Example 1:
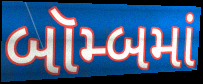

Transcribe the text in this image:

બૉમ્બમાં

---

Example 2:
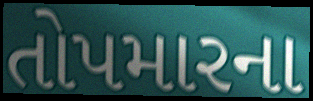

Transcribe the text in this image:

તોપમારના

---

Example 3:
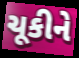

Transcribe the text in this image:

ચૂકીને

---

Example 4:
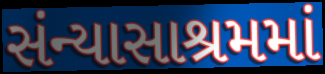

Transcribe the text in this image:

સંન્યાસાશ્રમમાં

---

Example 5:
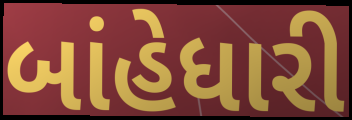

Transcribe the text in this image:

બાંહેધારી